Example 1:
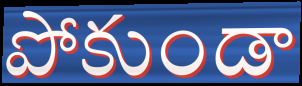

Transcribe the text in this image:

పోకుండా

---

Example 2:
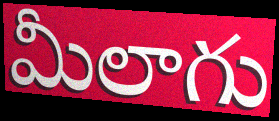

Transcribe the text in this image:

మీలాగు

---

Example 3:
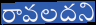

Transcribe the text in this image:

రావలదని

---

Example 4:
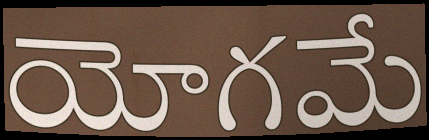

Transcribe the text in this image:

యోగమే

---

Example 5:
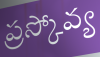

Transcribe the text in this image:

ప్రస్కోవ్య